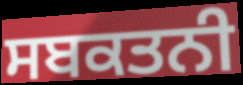
ਸਬਕਤਨੀ